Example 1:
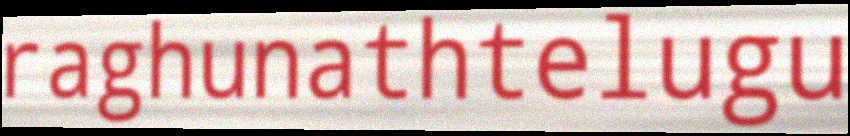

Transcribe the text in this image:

raghunathtelugu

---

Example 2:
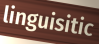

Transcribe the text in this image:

linguisitic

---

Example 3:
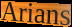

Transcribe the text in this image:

Arians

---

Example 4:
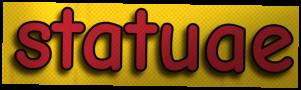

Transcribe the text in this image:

statuae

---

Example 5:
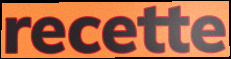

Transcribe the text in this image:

recette